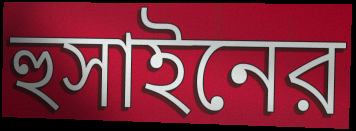
হুসাইনের